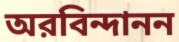
অরবিন্দানন